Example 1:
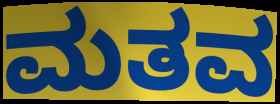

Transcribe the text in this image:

ಮತವ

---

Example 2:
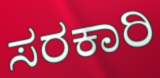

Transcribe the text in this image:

ಸರಕಾರಿ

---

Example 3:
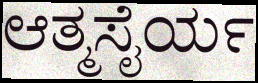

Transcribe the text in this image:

ಆತ್ಮಸೈರ್ಯ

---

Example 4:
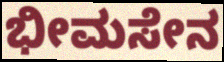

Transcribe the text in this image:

ಭೀಮಸೇನ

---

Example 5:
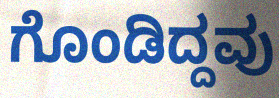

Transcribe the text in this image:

ಗೊಂಡಿದ್ದವು